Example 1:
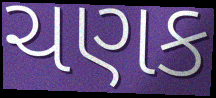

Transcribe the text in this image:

ચણક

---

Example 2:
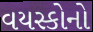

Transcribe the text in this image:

વયસ્કોનો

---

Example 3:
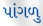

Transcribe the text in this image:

પાંગળુ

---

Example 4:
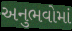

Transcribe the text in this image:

અનુભવોમાં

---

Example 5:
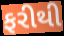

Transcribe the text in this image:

ફરીથી